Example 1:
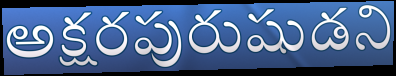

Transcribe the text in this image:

అక్షరపురుషుడని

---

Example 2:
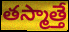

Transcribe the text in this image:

తస్మాత్తే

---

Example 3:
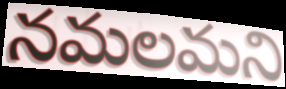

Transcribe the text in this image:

నమలమని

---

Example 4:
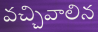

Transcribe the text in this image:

వచ్చివాలిన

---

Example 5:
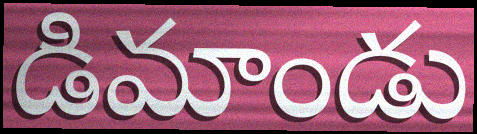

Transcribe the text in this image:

డిమాండు